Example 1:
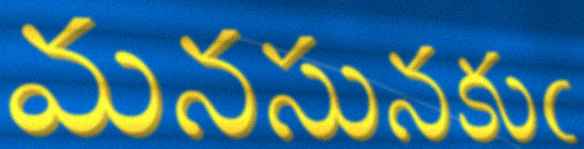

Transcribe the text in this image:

మనసునకుఁ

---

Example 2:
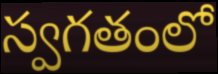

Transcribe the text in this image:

స్వగతంలో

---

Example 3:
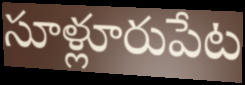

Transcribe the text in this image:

సూళ్లూరుపేట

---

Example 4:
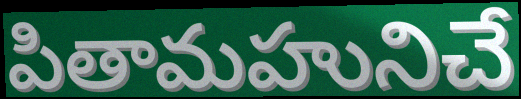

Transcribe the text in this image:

పితామహునిచే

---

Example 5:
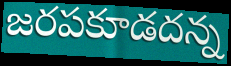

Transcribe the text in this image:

జరపకూడదన్న